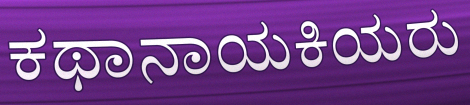
ಕಥಾನಾಯಕಿಯರು